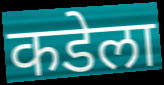
कडेला